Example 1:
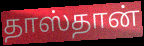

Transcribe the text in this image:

தாஸ்தான்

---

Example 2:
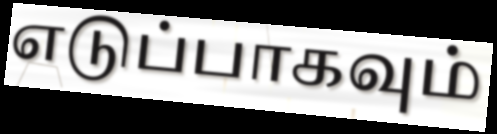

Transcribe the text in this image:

எடுப்பாகவும்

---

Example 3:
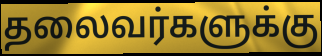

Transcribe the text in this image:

தலைவர்களுக்கு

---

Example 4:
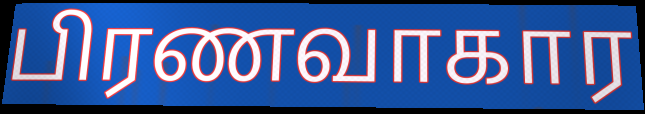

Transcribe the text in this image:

பிரணவாகார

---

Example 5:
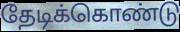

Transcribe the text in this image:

தேடிக்கொண்டு